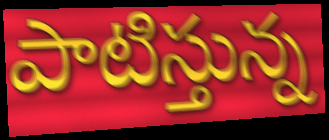
పాటిస్తున్న